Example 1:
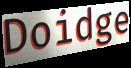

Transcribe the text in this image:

Doidge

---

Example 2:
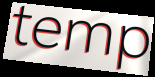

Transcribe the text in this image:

temp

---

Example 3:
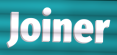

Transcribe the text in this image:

Joiner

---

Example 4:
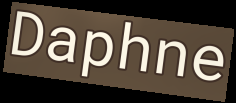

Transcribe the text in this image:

Daphne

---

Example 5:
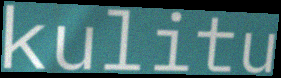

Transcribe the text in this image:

kulitu